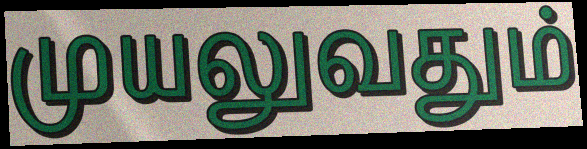
முயலுவதும்